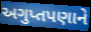
અગુપ્તપણાને